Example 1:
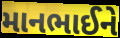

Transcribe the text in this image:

માનભાઈને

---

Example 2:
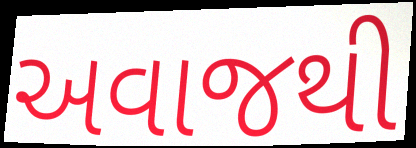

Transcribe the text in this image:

અવાજથી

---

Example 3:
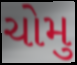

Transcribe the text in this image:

ચોમુ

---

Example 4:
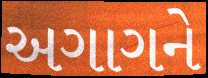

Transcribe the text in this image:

અગાગને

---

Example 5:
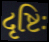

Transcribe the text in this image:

દૃષ્ટિઃ